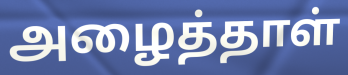
அழைத்தாள்